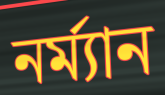
নর্ম্যান